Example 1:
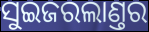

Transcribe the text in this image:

ସୁଇଜରଲାଣ୍ତର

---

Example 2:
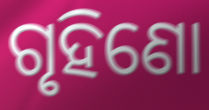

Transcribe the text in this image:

ଗୃହିଣୋ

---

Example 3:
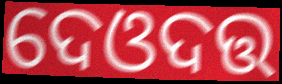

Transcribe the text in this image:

ଦେଓଦତ୍ତ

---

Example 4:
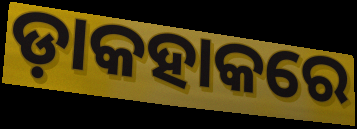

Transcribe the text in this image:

ଡ଼ାକହାକରେ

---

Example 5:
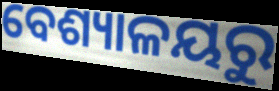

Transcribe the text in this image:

ବେଶ୍ୟାଳୟରୁ